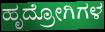
ಹೃದ್ರೋಗಿಗಳ